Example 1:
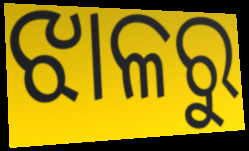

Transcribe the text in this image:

ଝାଳରୁ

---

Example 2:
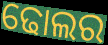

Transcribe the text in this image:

ଢୋଲର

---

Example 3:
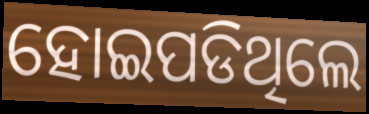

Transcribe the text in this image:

ହୋଇପଡିଥିଲେ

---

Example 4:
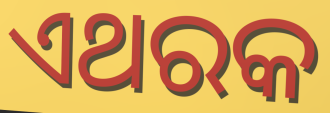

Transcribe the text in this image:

ଏଥରକ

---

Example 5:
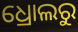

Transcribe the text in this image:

ଧ୍ରୋଲରୁ